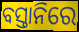
ବସ୍ତାନିରେ